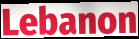
Lebanon